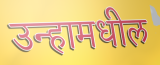
उन्हामधील